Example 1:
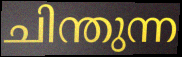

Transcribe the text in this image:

ചിന്തുന്ന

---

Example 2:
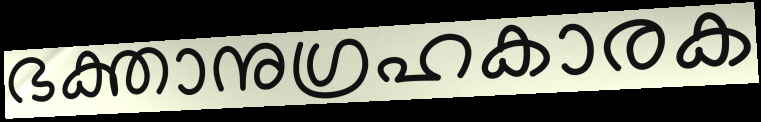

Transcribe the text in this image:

ഭക്താനുഗ്രഹകാരക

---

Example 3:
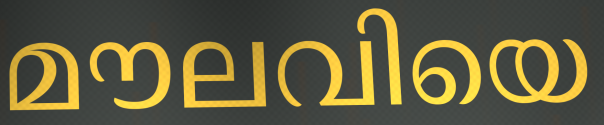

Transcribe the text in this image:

മൗലവിയെ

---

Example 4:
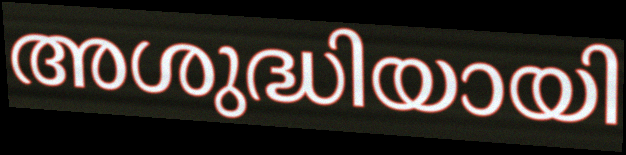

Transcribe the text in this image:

അശുദ്ധിയായി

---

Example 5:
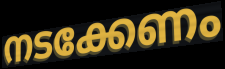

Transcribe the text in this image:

നടക്കേണം